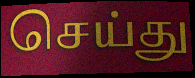
செய்து